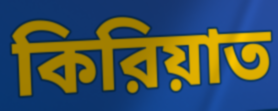
কিরিয়াত